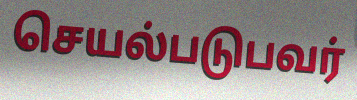
செயல்படுபவர்